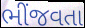
ભીંજવતા